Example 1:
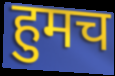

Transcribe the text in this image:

हुमच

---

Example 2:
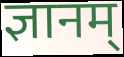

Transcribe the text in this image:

ज्ञानम्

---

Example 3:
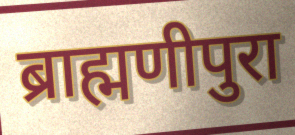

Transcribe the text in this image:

ब्राह्मणीपुरा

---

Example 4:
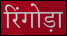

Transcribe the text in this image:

रिंगोड़ा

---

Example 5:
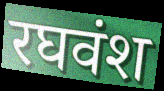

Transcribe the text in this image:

रघवंश